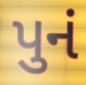
પુનં